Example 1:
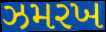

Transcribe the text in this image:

ઝમરખ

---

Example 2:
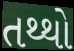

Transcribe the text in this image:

તથ્થો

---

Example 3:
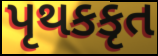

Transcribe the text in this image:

પૃથકકૃત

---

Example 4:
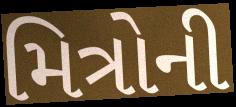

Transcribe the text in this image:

મિત્રોની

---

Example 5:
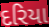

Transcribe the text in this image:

દરિયા